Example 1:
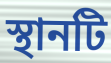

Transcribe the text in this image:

স্থানটি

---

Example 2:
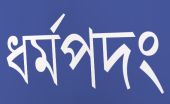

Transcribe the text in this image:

ধর্মপদং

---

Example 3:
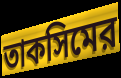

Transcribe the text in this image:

তাকসিমের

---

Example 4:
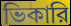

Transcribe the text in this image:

ভিকারি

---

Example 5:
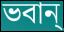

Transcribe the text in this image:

ভবান্